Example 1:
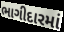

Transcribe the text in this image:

ભાગીદારમાં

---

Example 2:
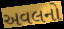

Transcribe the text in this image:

અવલનો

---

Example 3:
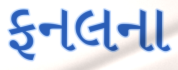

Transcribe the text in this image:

ફનલના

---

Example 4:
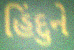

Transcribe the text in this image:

હિંદુને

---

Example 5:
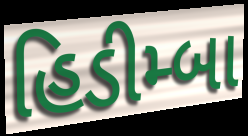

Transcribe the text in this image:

હિડીમ્બા